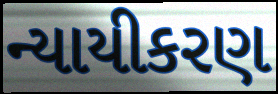
ન્યાયીકરણ